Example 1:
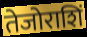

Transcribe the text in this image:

तेजोराशिं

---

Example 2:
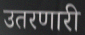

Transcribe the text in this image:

उतरणारी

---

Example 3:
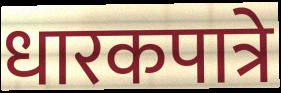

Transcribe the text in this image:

धारकपात्रे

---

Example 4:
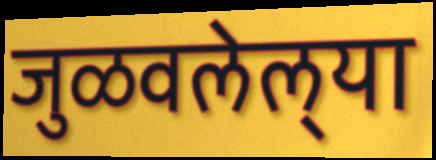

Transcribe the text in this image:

जुळवलेल्या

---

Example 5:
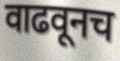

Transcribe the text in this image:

वाढवूनच